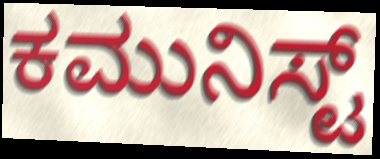
ಕಮುನಿಸ್ಟ್